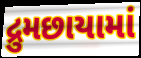
દ્રુમછાયામાં